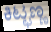
ಕಿಟ್ಟಣ್ಣ